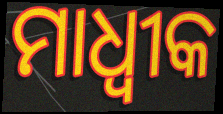
ମାଧ୍ୱୀକ